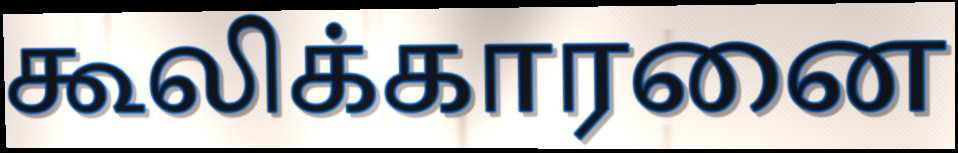
கூலிக்காரனை